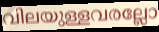
വിലയുള്ളവരല്ലോ